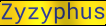
Zyzyphus